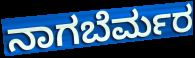
ನಾಗಬೆರ್ಮರ